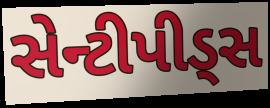
સેન્ટીપીડ્સ